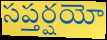
సప్తర్షయో